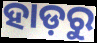
ହାଡ଼ରୁ